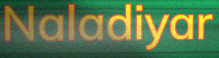
Naladiyar